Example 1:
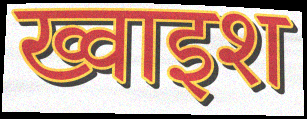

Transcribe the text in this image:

ख्वाइश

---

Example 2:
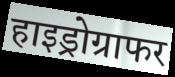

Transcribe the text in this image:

हाइड्रोग्राफर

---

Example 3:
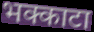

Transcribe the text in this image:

भक्काटा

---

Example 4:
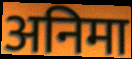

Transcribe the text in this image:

अनिमा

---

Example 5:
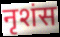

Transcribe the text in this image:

नृशंस